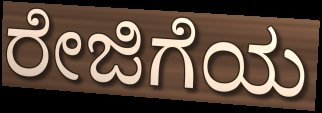
ರೇಜಿಗೆಯ